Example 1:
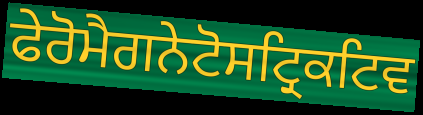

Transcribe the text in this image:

ਫੇਰੋਮੈਗਨੇਟੋਸਟ੍ਰਿਕਟਿਵ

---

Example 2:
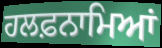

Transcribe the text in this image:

ਹਲਫ਼ਨਾਮਿਆਂ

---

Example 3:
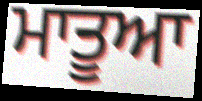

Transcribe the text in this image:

ਮਾਤੂਆ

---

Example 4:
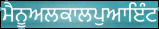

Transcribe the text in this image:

ਮੈਨੂਅਲਕਾਲਪੁਆਇੰਟ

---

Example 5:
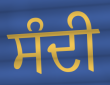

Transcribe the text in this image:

ਸੰਦੀ